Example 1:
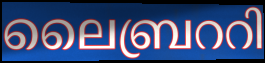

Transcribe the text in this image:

ലൈബ്രററി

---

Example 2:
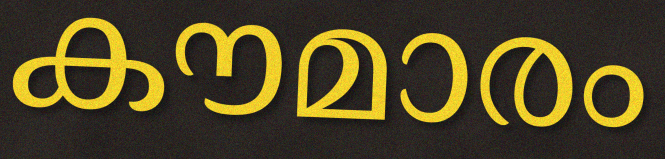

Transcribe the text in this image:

കൗമാരം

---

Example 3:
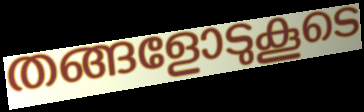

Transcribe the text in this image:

തങ്ങളോടുകൂടെ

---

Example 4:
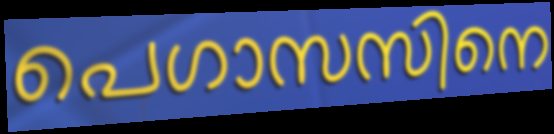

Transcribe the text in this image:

പെഗാസസിനെ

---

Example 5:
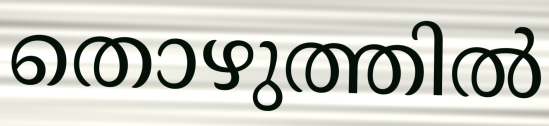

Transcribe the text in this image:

തൊഴുത്തിൽ